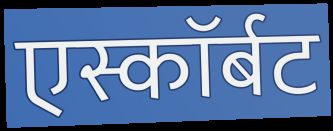
एस्कॉर्बट